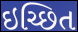
ઇચ્છિત